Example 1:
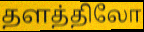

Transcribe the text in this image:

தளத்திலோ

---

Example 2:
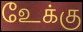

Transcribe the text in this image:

உேக்கு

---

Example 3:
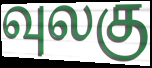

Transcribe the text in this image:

வுலகு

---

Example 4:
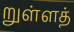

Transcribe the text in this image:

றுள்ளத்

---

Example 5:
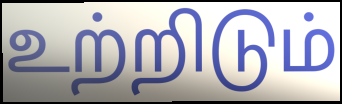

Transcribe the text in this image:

உற்றிடும்